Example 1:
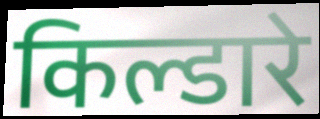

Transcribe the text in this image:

किल्डारे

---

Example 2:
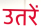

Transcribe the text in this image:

उतरें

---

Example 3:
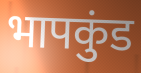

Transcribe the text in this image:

भापकुंड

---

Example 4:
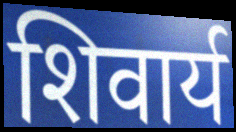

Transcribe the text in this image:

शिवार्य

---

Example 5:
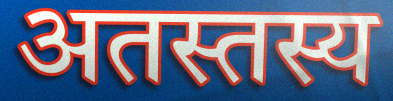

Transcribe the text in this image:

अतस्तस्य